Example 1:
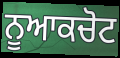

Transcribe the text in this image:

ਨੂਆਕਚੋਟ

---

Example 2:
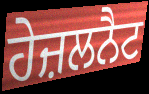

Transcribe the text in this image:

ਹੇਜ਼ਲਨੈਟ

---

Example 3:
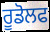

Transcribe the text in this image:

ਰੂਡੋਲਫ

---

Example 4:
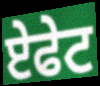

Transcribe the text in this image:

ਏਫੇਟ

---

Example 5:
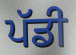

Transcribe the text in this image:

ਪੱਡੀ